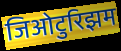
जिओटुरिझम